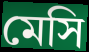
মেসি